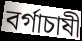
বর্গাচাষী